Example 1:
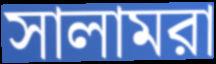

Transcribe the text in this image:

সালামরা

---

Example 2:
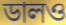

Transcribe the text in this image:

ডালও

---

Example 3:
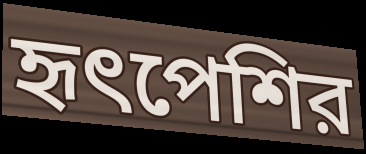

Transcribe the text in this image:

হৃৎপেশির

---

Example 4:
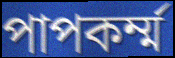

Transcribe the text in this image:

পাপকর্ম্ম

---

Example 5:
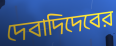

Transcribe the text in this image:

দেবাদিদেবের